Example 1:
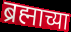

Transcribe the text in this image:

ब्रह्माच्या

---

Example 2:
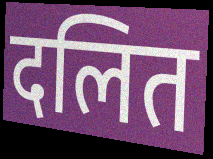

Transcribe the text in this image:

दलित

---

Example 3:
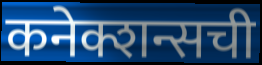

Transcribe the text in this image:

कनेक्शन्सची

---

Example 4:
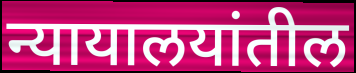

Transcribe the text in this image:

न्यायालयांतील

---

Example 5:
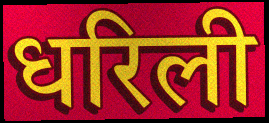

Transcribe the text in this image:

धरिली